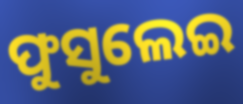
ଫୁସୁଲେଇ